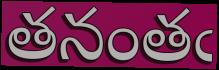
తనంతఁ